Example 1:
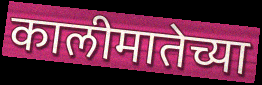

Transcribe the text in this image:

कालीमातेच्या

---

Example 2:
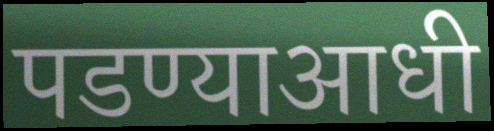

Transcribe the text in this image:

पडण्याआधी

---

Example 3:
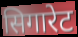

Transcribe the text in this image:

सिगारेट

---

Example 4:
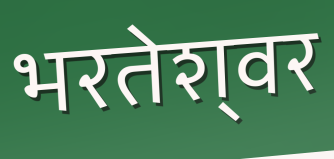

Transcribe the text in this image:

भरतेश्वर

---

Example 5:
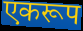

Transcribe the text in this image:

एकरूप